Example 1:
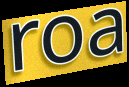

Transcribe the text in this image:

roa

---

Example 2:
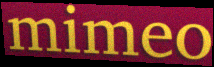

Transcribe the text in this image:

mimeo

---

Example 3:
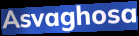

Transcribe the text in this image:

Asvaghosa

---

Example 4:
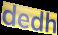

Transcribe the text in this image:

dedh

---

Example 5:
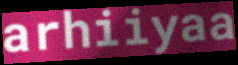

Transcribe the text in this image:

arhiiyaa